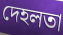
দেহলতা